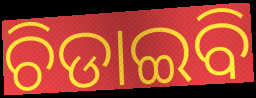
ଚିଡାଇବି